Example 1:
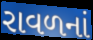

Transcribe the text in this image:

રાવળનાં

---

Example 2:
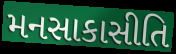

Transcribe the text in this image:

મનસાકાસીતિ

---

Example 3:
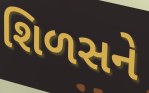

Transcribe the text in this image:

શિળસને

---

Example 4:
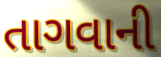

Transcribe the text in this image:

તાગવાની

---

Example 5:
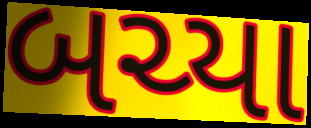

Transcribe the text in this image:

બચ્યા